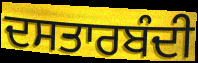
ਦਸਤਾਰਬੰਦੀ